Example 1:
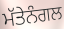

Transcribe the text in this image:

ਮੱਤੇਨੰਗਲ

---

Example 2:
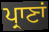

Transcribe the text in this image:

ਪ੍ਰਾਣਾਂ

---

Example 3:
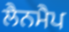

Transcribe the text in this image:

ਲੈਨਮੈਪ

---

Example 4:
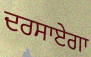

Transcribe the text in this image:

ਦਰਸਾਏਗਾ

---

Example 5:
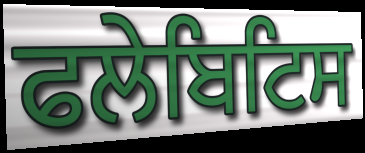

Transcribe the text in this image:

ਫਲੇਬਿਟਿਸ